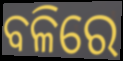
ବଳିରେ